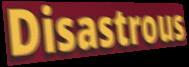
Disastrous